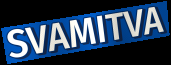
SVAMITVA